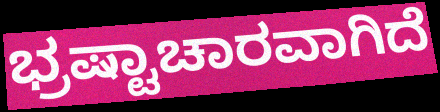
ಭ್ರಷ್ಟಾಚಾರವಾಗಿದೆ